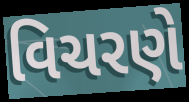
વિચરણે